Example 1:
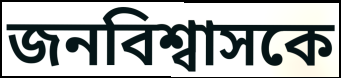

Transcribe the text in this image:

জনবিশ্বাসকে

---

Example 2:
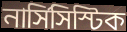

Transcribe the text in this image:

নার্সিসিস্টিক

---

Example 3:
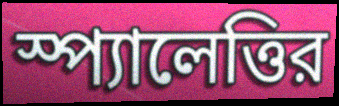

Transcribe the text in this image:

স্প্যালেত্তির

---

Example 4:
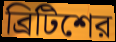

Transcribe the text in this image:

ব্রিটিশের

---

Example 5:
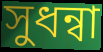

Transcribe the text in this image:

সুধন্বা